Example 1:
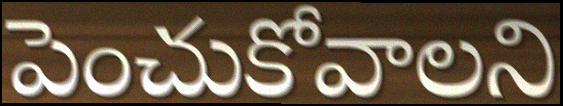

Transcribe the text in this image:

పెంచుకోవాలని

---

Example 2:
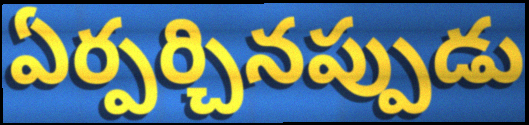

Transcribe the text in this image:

ఏర్పర్చినప్పుడు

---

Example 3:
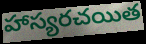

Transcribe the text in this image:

హాస్యరచయిత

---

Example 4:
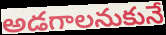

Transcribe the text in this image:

అడగాలనుకునే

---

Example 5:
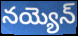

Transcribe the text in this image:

నయ్యెన్